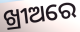
ଖ୍ରୀଅରେ